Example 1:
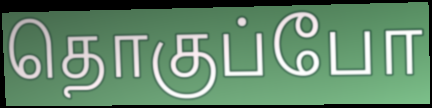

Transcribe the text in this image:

தொகுப்போ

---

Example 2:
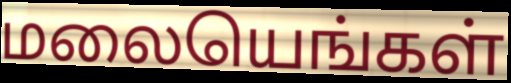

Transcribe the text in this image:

மலையெங்கள்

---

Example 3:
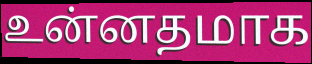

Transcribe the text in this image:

உன்னதமாக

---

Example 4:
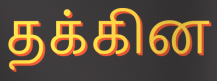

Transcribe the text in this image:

தக்கின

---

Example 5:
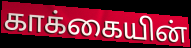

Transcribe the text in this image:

காக்கையின்